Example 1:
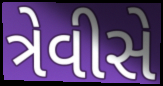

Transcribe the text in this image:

ત્રેવીસે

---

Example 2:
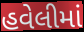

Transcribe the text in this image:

હવેલીમાં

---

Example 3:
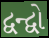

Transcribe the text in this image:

દ્વન્દ્વો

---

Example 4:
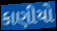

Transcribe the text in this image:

કાણીયો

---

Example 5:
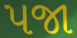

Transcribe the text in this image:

પજા